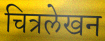
चित्रलेखन